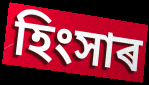
হিংসাৰ